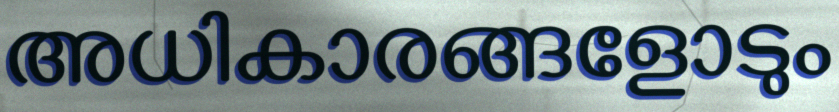
അധികാരങ്ങളോടും